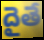
దైతే